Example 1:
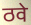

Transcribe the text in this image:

ठवे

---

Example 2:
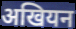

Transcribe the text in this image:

अखियन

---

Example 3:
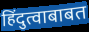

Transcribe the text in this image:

हिंदुत्वाबाबत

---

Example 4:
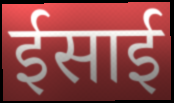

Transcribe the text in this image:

ईसाई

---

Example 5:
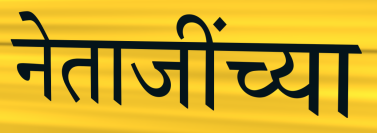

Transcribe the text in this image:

नेताजींच्या